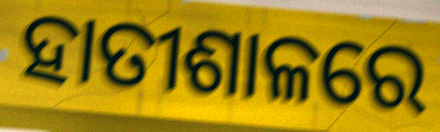
ହାତୀଶାଳରେ